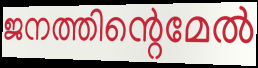
ജനത്തിന്റെമേൽ